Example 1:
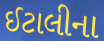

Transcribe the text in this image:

ઈટાલીના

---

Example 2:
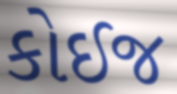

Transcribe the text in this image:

કોઈજ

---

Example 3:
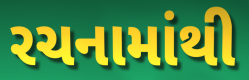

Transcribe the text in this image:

રચનામાંથી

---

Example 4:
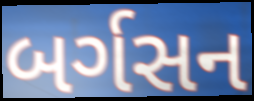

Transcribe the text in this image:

બર્ગસન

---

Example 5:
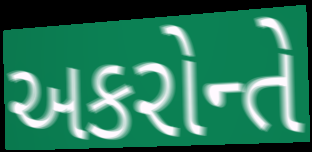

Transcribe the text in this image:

અકરોન્તે